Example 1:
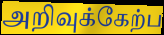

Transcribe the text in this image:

அறிவுக்கேற்ப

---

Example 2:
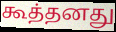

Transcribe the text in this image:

கூத்தனது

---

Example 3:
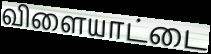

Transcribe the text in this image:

விளையாட்டை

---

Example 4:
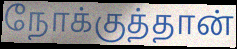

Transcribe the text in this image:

நோக்குத்தான்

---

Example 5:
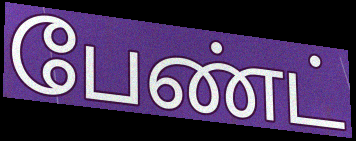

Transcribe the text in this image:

பேண்ட்